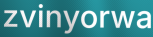
zvinyorwa